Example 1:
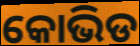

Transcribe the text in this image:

କୋଭିଡ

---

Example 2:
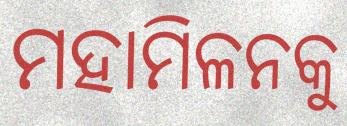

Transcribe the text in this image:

ମହାମିଳନକୁ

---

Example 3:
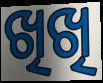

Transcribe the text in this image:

ଖିଖି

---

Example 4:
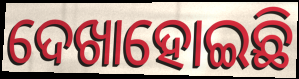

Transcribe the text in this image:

ଦେଖାହୋଇଛି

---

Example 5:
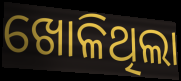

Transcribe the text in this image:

ଖୋଳିଥିଲା